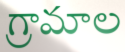
గ్రామాల